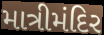
માત્રીમંદિર